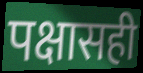
पक्षासही